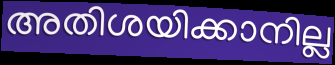
അതിശയിക്കാനില്ല